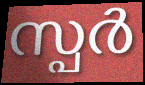
സ്പർ